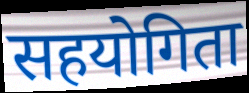
सहयोगिता